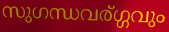
സുഗന്ധവര്ഗ്ഗവും